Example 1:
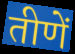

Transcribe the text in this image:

तीणें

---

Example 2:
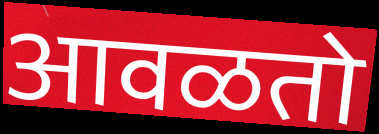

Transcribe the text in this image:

आवळतो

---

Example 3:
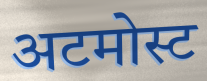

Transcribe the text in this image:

अटमोस्ट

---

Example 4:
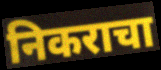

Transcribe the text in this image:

निकराचा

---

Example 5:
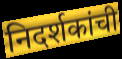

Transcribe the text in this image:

निदर्शकांची